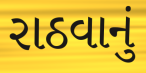
રાઠવાનું